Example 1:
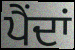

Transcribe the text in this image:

ਪੈਂਦਾਂ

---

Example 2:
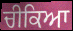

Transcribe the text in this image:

ਚੀਕਿਆ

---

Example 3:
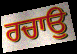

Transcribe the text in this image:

ਰਚਾਉ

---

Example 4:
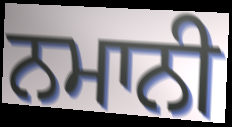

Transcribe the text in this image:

ਨਮਾਨੀ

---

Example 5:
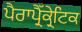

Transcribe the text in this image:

ਪੈਰਾਪ੍ਰੈੱਕ੍ਰੇਟਿਕ